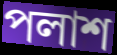
পলাশ